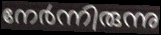
നേർന്നിരുന്നു